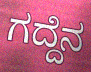
ಗದ್ದೆನ